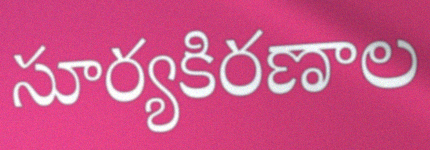
సూర్యకిరణాల